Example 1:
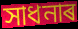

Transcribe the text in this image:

সাধনাৰ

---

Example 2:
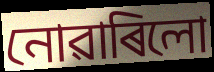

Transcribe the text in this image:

নোৱাৰিলো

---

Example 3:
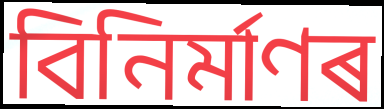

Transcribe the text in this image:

বিনিৰ্মাণৰ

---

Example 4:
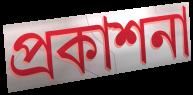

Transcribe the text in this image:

প্ৰকাশনা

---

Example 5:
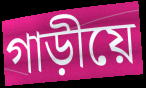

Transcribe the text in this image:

গাড়ীয়ে